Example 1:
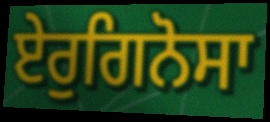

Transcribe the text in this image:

ਏਰੁਗਿਨੋਸਾ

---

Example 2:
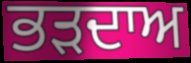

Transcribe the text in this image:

ਭੜਦਾਅ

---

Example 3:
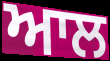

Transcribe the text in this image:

ਆਲ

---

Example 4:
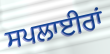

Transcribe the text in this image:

ਸਪਲਾਈਰਾਂ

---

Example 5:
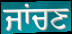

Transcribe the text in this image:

ਜਾਂਚਣ